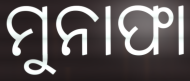
ମୁନାଫା